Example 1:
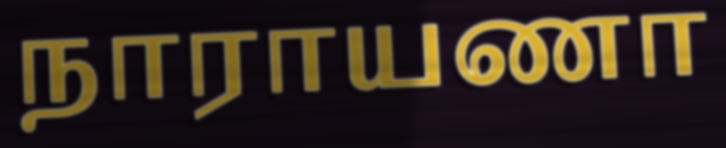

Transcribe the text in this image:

நாராயணா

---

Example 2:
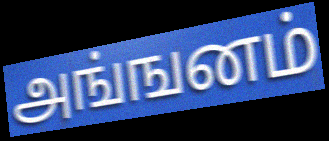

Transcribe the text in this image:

அங்ஙனம்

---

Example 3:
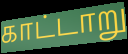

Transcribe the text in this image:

காட்டாறு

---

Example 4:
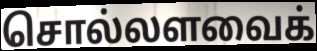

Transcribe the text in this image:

சொல்லளவைக்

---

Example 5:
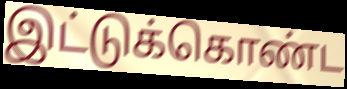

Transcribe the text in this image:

இட்டுக்கொண்ட